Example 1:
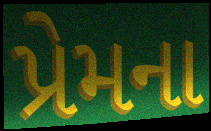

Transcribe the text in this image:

પ્રેમના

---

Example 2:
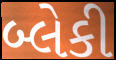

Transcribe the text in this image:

બ્લેકી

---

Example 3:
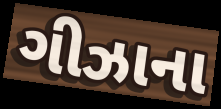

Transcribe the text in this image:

ગીઝાના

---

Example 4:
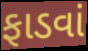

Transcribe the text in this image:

ફાડવાં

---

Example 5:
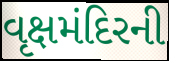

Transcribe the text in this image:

વૃક્ષમંદિરની